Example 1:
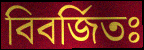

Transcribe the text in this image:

বিবর্জিতঃ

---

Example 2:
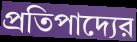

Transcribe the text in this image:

প্রতিপাদ্যের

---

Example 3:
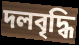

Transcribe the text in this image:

দলবৃদ্ধি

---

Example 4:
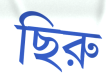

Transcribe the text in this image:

ছিরু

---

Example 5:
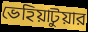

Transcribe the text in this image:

ভেহিয়াটুয়ার